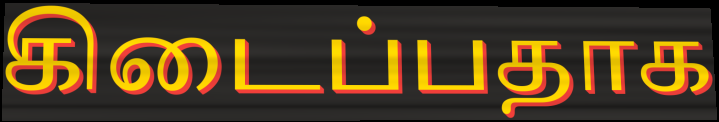
கிடைப்பதாக